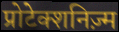
प्रोटेक्शनिज़्म